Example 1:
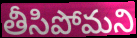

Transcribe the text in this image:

తీసిపోమని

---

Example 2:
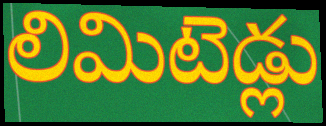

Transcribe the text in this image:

లిమిటెడ్లు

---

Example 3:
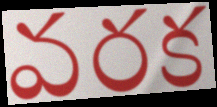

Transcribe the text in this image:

వరక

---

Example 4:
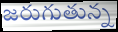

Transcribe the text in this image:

జరుగుతున్న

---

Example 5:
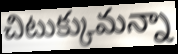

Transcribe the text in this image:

చిటుక్కుమన్నా